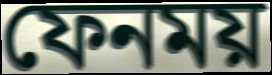
ফেনময়